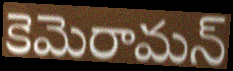
కెమెరామన్